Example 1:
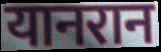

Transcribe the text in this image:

यानरान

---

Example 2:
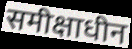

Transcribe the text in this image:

समीक्षाधीन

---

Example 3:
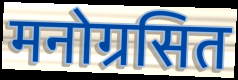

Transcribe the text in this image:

मनोग्रसित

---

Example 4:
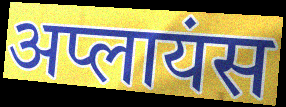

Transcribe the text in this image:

अप्‍लायंस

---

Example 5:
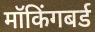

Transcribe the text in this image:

मॉकिंगबर्ड